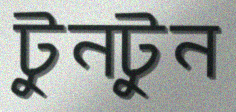
টুনটুন